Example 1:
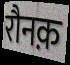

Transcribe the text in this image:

रौनक़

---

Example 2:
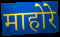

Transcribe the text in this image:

माहोरे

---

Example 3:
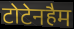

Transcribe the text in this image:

टोटेनहैम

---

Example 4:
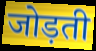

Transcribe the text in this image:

जोड़ती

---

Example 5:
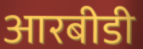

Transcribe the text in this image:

आरबीडी